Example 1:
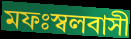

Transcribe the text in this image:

মফঃস্বলবাসী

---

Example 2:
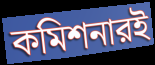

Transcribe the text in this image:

কমিশনারই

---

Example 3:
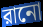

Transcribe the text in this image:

রানো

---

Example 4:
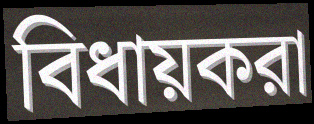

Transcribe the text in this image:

বিধায়করা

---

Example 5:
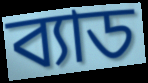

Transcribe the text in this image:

ব্যাড